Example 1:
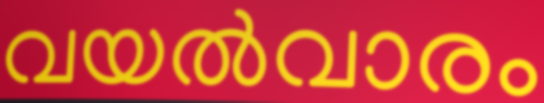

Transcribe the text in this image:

വയൽവാരം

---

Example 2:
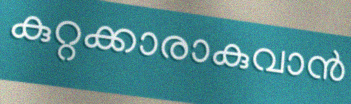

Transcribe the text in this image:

കുറ്റക്കാരാകുവാൻ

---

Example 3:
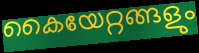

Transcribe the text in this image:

കൈയേറ്റങ്ങളും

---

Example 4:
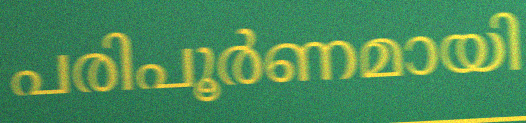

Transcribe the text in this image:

പരിപൂർണമായി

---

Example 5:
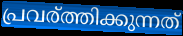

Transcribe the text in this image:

പ്രവര്ത്തിക്കുന്നത്